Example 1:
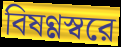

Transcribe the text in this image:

বিষণ্ণস্বরে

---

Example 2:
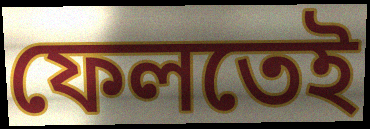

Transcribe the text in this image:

ফেলতেই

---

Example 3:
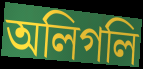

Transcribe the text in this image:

অলিগলি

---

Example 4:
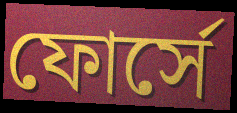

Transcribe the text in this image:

ফোর্সে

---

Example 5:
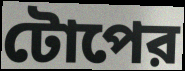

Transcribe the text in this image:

টোপের